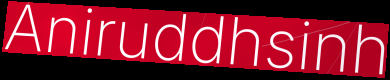
Aniruddhsinh